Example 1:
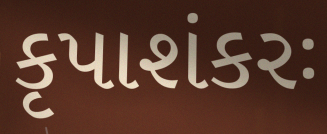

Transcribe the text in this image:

કૃપાશંકરઃ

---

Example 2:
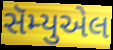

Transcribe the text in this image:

સૅમ્યુએલ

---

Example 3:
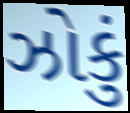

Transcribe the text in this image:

ઝોકું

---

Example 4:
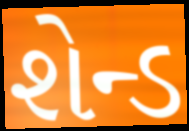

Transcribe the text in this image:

શેન્ડ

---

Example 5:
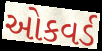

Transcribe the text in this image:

ઓકવર્ડ